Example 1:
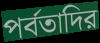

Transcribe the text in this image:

পর্বতাদির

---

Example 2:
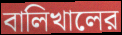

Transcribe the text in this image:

বালিখালের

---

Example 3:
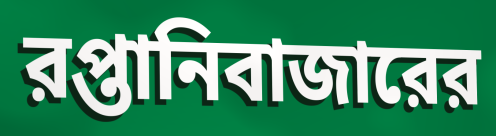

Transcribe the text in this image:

রপ্তানিবাজারের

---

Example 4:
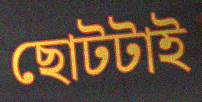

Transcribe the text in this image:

ছোটটাই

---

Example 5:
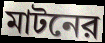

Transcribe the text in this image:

মাটনের